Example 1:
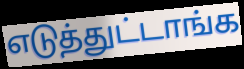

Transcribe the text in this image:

எடுத்துட்டாங்க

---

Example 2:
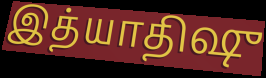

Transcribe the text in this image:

இத்யாதிஷு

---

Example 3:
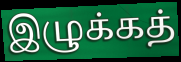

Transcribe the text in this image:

இழுக்கத்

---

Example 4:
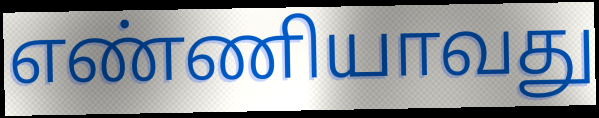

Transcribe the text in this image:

எண்ணியாவது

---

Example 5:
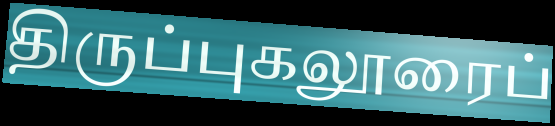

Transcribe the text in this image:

திருப்புகலூரைப்